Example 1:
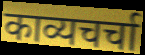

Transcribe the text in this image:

काव्यचर्चा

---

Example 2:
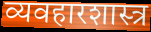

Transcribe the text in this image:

व्यवहारशास्त्र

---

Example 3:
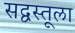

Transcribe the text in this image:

सद्वस्तूला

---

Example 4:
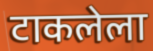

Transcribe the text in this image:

टाकलेला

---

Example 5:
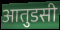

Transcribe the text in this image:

आतुडसी